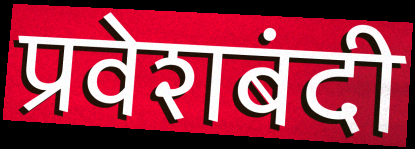
प्रवेशबंदी